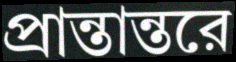
প্রান্তান্তরে